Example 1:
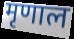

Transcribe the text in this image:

मृणाल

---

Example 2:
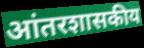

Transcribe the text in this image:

आंतरशासकीय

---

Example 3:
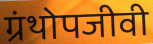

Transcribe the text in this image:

ग्रंथोपजीवी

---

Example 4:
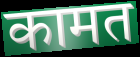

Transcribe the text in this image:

कामत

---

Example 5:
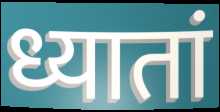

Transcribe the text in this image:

ध्यातां